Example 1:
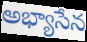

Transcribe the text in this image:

అభ్యాసేన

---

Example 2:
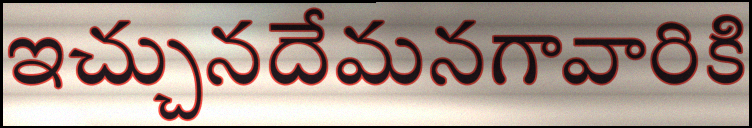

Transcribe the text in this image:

ఇచ్చునదేమనగావారికి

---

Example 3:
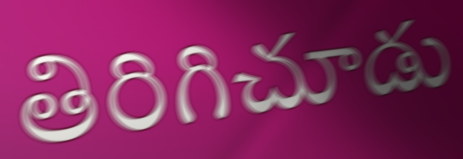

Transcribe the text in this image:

తిరిగిచూడు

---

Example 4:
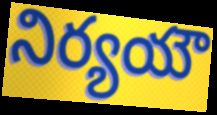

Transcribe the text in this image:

నిర్యయౌ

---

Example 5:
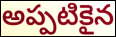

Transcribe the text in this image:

అప్పటికైన